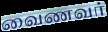
வைணவர்